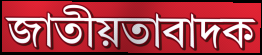
জাতীয়তাবাদক